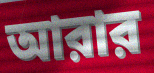
আরার